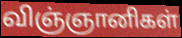
விஞ்ஞானிகள்